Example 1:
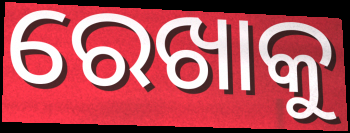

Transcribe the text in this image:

ରେଖାକୁ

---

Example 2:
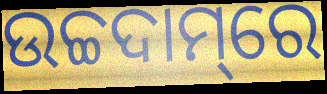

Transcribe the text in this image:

ଉଚ୍ଚଦାମ୍‌ରେ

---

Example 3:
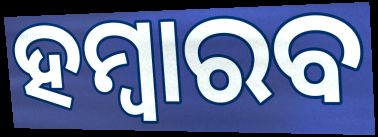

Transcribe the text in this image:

ହମ୍ବାରବ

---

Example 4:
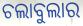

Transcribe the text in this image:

ଚଲାବୁଲାର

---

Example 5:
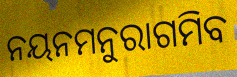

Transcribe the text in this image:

ନୟନମନୁରାଗମିବ